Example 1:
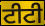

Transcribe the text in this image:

ਟੀਟੀ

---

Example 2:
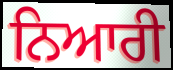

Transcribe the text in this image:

ਨਿਆਰੀ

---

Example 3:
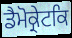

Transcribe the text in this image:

ਡੈਮੋਕ੍ਰੇਟਕਿ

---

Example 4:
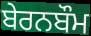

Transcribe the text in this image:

ਬੇਰਨਬੌਮ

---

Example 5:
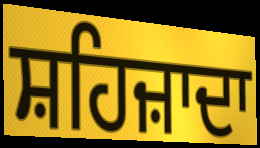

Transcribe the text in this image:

ਸ਼ਹਿਜ਼ਾਦਾ